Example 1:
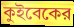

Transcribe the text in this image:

কুইবেকের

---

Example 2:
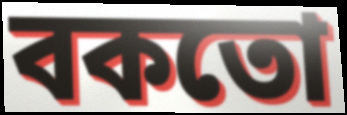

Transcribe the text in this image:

বকতো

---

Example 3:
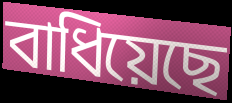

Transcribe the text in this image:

বাধিয়েছে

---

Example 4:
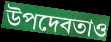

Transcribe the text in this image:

উপদেবতাও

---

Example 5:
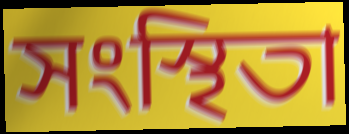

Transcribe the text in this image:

সংস্থিতা